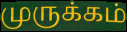
முருக்கம்